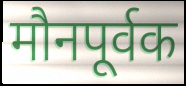
मौनपूर्वक